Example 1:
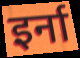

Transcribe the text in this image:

इर्ना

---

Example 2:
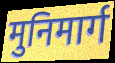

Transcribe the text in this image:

मुनिमार्ग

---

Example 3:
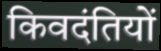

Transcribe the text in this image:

किवदंतियों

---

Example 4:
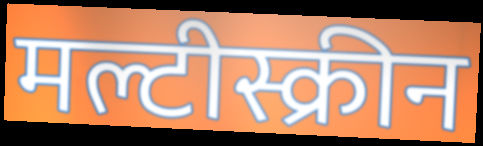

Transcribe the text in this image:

मल्टीस्क्रीन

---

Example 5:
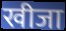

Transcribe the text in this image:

खीजा